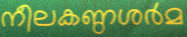
നീലകണ്ഠശർമ